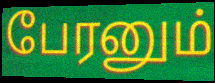
பேரனும்